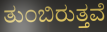
ತುಂಬಿರುತ್ತವೆ